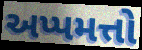
અપ્પમત્તો